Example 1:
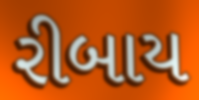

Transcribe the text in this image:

રીબાય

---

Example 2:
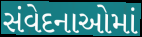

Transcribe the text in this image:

સંવેદનાઓમાં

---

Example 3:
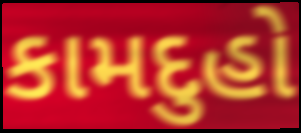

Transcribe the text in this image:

કામદુહો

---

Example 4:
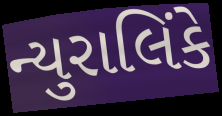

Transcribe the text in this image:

ન્યુરાલિંકે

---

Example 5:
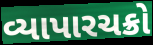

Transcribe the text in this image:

વ્યાપારચક્રો